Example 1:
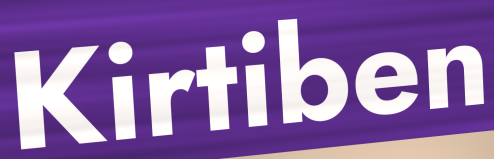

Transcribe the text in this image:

Kirtiben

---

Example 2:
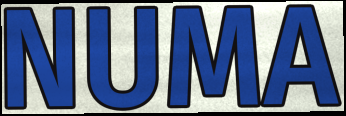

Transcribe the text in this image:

NUMA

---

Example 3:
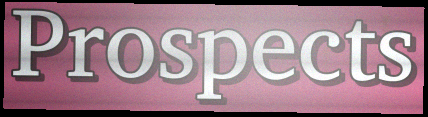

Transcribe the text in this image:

Prospects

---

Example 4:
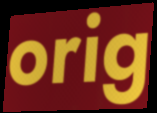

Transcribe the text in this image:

orig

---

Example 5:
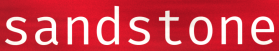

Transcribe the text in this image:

sandstone